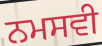
ਨਮਸਵੀ